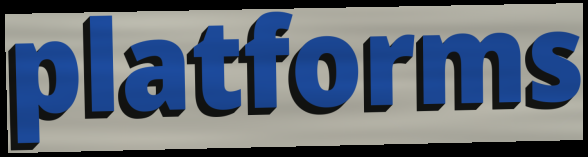
platforms